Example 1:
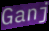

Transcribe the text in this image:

Ganj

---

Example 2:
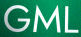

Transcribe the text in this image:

GML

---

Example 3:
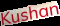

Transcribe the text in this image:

Kushan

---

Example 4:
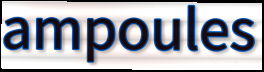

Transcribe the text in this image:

ampoules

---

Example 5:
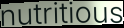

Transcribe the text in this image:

nutritious